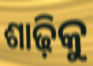
ଶାଢ଼ିକୁ